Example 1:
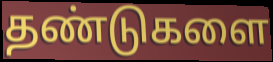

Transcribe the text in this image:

தண்டுகளை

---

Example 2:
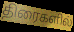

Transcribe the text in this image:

திரைகளில்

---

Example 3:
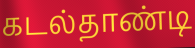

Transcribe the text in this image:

கடல்தாண்டி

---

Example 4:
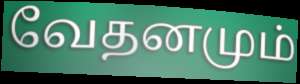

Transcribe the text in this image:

வேதனமும்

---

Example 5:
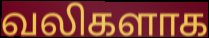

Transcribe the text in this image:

வலிகளாக